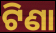
ଟିଣା